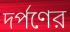
দর্পণের